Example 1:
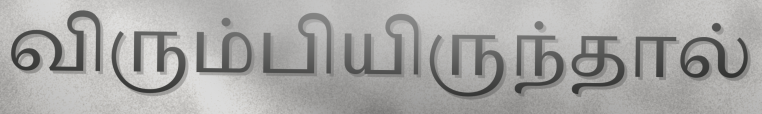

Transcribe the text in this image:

விரும்பியிருந்தால்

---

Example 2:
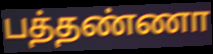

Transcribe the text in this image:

பத்தண்ணா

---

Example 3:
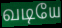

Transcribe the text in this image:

வடியே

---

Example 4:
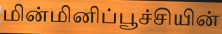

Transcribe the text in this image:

மின்மினிப்பூச்சியின்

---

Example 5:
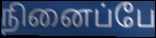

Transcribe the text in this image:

நினைப்பே